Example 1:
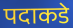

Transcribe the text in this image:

पदाकडे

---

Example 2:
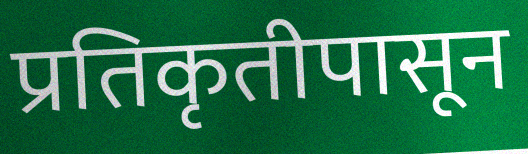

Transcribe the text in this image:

प्रतिकृतीपासून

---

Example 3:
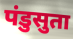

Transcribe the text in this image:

पंडुसुता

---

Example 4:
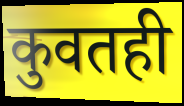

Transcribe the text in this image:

कुवतही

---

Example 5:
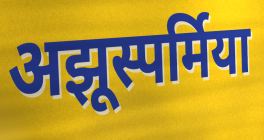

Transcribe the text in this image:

अझूस्पर्मिया